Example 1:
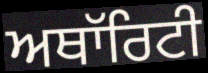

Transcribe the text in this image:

ਅਥਾੱਰਿਟੀ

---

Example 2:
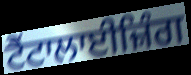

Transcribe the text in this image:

ਟੈਂਟਾਲਾਈਜ਼ਿੰਗ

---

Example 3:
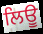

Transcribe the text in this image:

ਲਿਊ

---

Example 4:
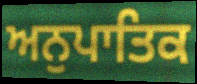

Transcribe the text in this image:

ਅਨੁਪਾਤਿਕ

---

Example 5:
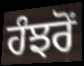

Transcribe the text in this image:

ਹੰਝਰੋਂ